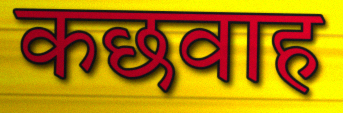
कछवाह